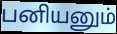
பனியனும்